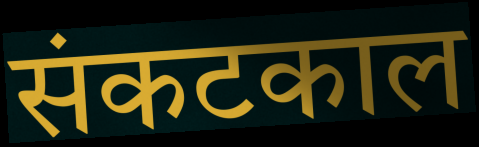
संकटकाल